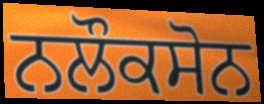
ਨਲੌਕਸੋਨ